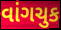
વાંગચુક